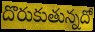
దొరుకుతున్నదో